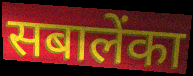
सबालेंका